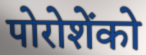
पोरोशेंको